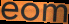
eom